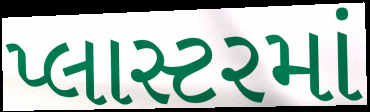
પ્લાસ્ટરમાં